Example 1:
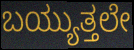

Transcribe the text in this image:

ಬಯ್ಯುತ್ತಲೇ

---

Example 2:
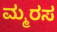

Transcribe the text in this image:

ಮ್ಮರಸ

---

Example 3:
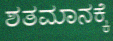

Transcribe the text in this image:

ಶತಮಾನಕ್ಕೆ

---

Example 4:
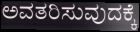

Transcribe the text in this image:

ಅವತರಿಸುವುದಕ್ಕೆ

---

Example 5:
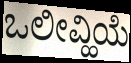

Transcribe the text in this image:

ಒಲೀವ್ಹಿಯೆ